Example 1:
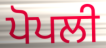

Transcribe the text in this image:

ਪੋਪਲੀ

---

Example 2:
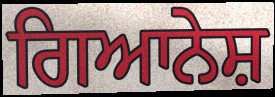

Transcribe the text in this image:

ਗਿਆਨੇਸ਼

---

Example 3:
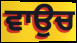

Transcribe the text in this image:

ਵਾਉਚ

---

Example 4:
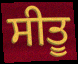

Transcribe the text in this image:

ਸੀਤੂ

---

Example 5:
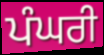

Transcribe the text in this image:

ਪੰਘਰੀ